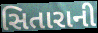
સિતારાની